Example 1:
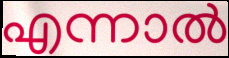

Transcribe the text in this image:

എന്നാൽ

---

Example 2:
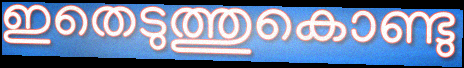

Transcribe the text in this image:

ഇതെടുത്തുകൊണ്ടു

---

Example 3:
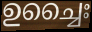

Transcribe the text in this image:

ഉച്ചൈഃ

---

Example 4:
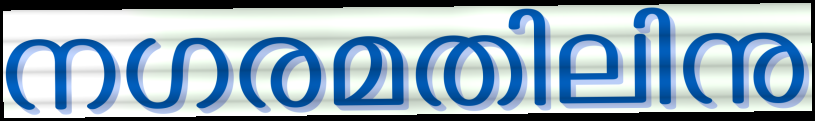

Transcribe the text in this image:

നഗരമതിലിനു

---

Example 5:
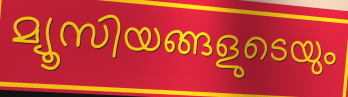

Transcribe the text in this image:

മ്യൂസിയങ്ങളുടെയും